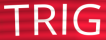
TRIG